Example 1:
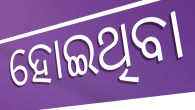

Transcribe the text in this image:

ହୋଇଥିବା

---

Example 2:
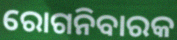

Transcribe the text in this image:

ରୋଗନିବାରକ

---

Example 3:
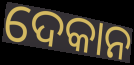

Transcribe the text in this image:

ଦେକାନ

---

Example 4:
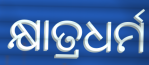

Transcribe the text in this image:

କ୍ଷାତ୍ରଧର୍ମ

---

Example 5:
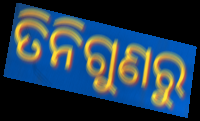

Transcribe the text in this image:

ତିନିଗୁଣରୁ